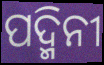
ପଦ୍ମିନୀ